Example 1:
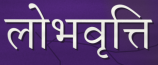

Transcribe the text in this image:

लोभवृत्ति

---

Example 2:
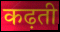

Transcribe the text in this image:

कढ़ती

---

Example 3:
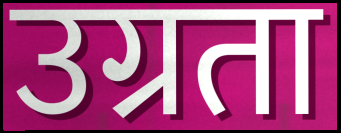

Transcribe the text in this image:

उग्रता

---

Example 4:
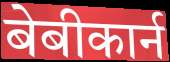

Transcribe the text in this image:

बेबीकार्न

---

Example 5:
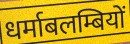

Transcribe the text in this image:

धर्माबलम्बियों